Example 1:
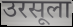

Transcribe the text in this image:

उरसूला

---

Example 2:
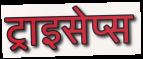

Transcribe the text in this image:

ट्राइसेप्स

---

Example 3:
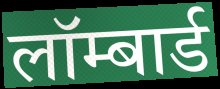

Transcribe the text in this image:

लॉम्बार्ड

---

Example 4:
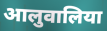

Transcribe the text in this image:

आलुवालिया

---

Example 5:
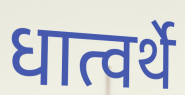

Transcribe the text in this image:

धात्वर्थे